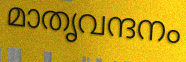
മാതൃവന്ദനം